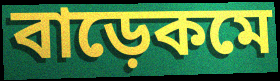
বাড়েকমে